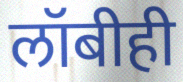
लॉबीही